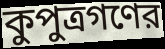
কুপুত্রগণের